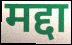
मद्दा